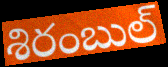
శిరంబుల్